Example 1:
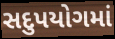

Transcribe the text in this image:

સદુપયોગમાં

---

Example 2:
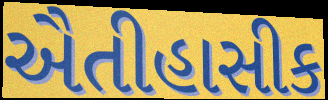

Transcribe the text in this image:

ઐતીહાસીક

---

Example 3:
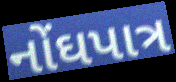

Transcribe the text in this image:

નોંઘપાત્ર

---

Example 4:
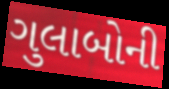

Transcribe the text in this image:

ગુલાબોની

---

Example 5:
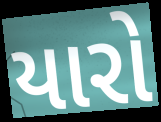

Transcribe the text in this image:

યારો